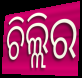
ଚିଲ୍ଲିର